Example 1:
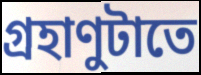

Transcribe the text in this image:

গ্রহাণুটাতে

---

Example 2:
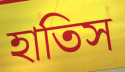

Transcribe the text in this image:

হাতিস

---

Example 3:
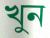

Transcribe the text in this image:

খুন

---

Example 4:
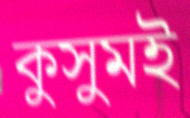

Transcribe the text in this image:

কুসুমই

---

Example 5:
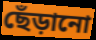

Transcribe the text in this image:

ছেঁড়ানো